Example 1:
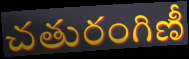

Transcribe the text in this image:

చతురంగిణీ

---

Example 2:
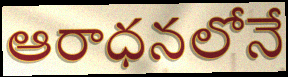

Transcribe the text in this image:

ఆరాధనలోనే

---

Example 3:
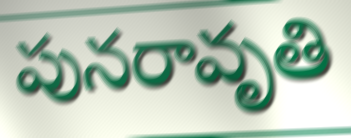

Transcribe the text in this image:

పునరావృతి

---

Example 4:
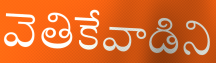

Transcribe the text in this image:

వెతికేవాడిని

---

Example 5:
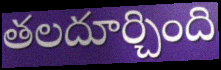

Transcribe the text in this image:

తలదూర్చింది